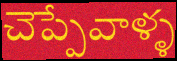
చెప్పేవాళ్ళ